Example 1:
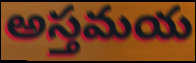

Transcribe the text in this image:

అస్తమయ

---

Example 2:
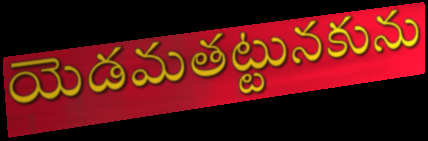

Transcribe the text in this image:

యెడమతట్టునకును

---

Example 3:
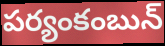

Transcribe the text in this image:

పర్యంకంబున్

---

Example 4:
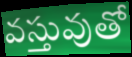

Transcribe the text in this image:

వస్తువుతో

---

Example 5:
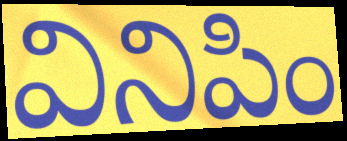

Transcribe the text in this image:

వినిపిం